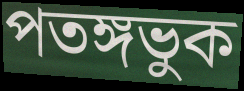
পতঙ্গভুক